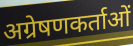
अग्रेषणकर्ताओं